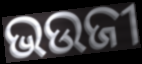
ଭଉଜୀ